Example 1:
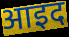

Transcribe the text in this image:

आइद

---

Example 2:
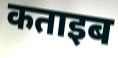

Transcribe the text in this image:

कताइब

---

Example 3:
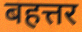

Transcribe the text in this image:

बहत्तर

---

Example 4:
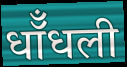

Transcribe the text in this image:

धॉँधली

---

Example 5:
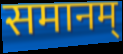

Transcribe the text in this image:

समानम्